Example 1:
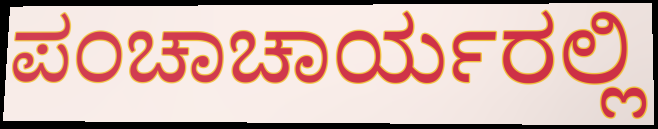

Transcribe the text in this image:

ಪಂಚಾಚಾರ್ಯರಲ್ಲಿ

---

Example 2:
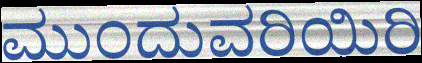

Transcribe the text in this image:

ಮುಂದುವರಿಯಿರಿ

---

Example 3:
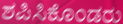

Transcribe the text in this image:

ಶಪಿಸಿಕೊಂಡರು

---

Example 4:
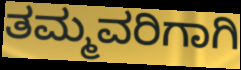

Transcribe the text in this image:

ತಮ್ಮವರಿಗಾಗಿ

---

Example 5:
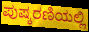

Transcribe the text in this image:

ಪುಷ್ಕರಣಿಯಲ್ಲಿ